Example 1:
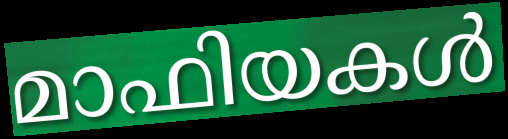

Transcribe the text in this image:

മാഫിയകൾ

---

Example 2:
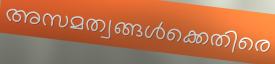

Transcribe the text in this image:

അസമത്വങ്ങൾക്കെതിരെ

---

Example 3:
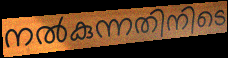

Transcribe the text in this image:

നൽകുന്നതിനിടെ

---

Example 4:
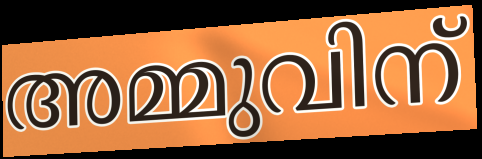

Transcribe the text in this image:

അമ്മുവിന്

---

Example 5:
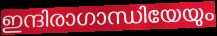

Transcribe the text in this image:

ഇന്ദിരാഗാന്ധിയേയും